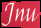
Jnu